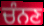
ਚੰਨਣ